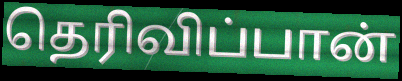
தெரிவிப்பான்